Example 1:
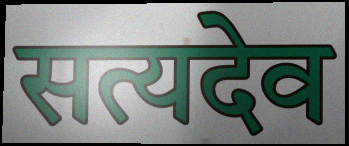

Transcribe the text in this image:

सत्यदेव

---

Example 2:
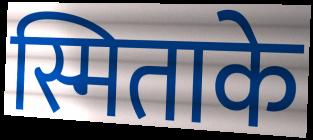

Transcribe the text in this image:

स्मिताके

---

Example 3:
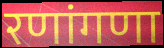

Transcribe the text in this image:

रणांगणा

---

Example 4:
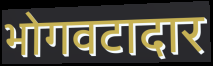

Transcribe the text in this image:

भोगवटादार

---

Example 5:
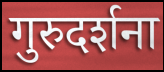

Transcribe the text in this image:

गुरुदर्शना